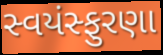
સ્વયંસ્ફુરણા